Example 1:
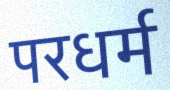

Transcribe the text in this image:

परधर्म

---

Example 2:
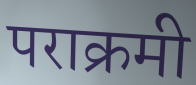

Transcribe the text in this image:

पराक्रमी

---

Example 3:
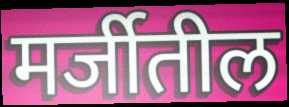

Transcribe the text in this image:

मर्जीतील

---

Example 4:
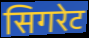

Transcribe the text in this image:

सिगरेट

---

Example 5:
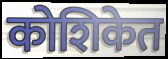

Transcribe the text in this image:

कोशिकेत